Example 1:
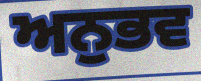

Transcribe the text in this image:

ਅਨੁਭਵ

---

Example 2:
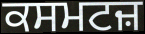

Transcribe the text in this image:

ਕਸਮਟਜ਼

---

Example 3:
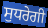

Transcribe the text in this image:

ਸੁਧਰੇਗੀ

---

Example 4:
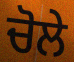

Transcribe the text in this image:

ਚੋਲੇ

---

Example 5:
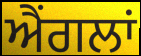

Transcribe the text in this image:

ਐਂਗਲਾਂ